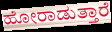
ಹೋರಾಡುತ್ತಾರೆ